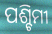
ପଶ୍ଚିମୀ